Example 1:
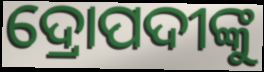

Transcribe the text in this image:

ଦ୍ରୋପଦୀଙ୍କୁ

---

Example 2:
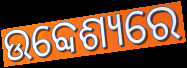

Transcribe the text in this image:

ଉବ୍ଦେଶ୍ୟରେ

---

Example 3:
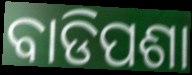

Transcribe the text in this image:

ବାଡିପଶା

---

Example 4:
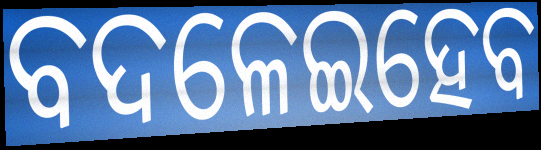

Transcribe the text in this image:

ବଦଳେଇହେବ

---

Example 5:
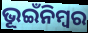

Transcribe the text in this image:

ଭୂଇଁନିମ୍ବର